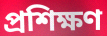
প্ৰশিক্ষণ